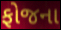
ફોજના